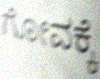
ಗೋವಕ್ಕೆ